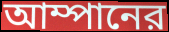
আম্পানের